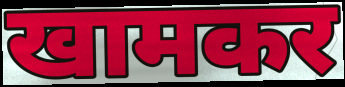
खामकर